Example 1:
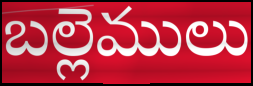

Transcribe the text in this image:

బల్లెములు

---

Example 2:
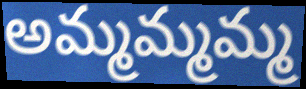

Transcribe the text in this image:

అమ్మమ్మమ్మ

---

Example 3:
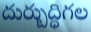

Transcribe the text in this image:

దుర్బుద్ధిగల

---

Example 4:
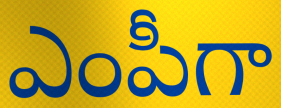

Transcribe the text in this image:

ఎంపీగా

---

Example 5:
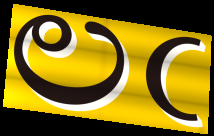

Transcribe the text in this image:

లఁ